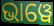
ଭାୱେ